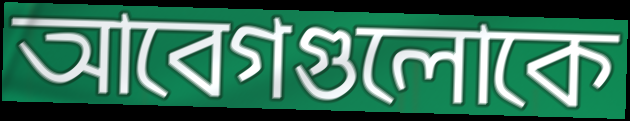
আবেগগুলোকে